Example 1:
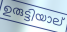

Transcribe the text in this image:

ഉരുട്ടിയാല്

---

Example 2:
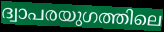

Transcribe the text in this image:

ദ്വാപരയുഗത്തിലെ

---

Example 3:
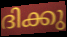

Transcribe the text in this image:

ദിക്കു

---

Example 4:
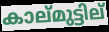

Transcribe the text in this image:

കാല്മുട്ടില്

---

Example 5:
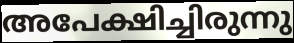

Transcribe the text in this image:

അപേക്ഷിച്ചിരുന്നു